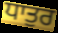
ਧਾਤੁਰ